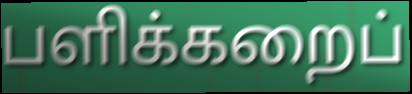
பளிக்கறைப்